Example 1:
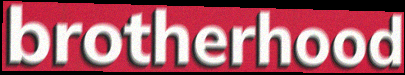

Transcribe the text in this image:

brotherhood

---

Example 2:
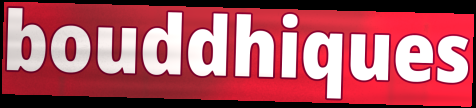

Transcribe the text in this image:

bouddhiques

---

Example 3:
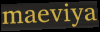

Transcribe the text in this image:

maeviya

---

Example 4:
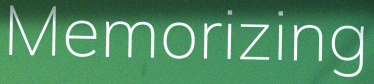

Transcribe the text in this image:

Memorizing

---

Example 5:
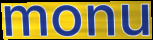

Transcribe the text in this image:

monu